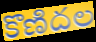
కొణిదల